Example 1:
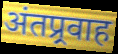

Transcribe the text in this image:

अंतप्र्रवाह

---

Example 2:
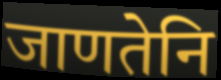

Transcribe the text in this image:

जाणतेनि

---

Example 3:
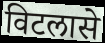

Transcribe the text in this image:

विटलासे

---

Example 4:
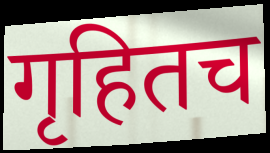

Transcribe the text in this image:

गृहितच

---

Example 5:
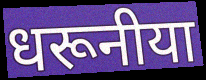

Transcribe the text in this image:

धरूनीया